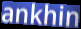
ankhin